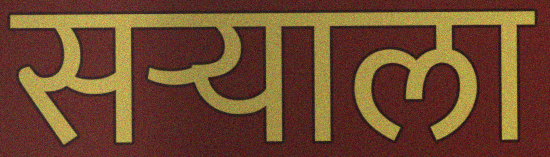
सऱ्याला